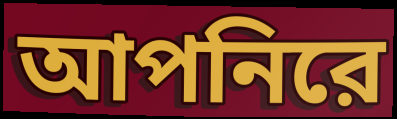
আপনিরে